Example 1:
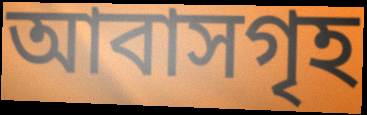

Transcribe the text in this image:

আবাসগৃহ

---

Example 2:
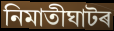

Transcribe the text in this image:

নিমাতীঘাটৰ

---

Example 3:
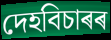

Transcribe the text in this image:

দেহবিচাৰৰ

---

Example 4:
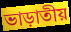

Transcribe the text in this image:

ভাড়াতীয়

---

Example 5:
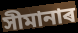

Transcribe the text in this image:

সীমানাৰ